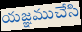
యజ్ఞముచేసి